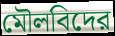
মৌলবিদের